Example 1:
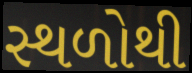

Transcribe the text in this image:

સ્થળોથી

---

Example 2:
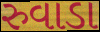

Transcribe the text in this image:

રુવાડા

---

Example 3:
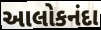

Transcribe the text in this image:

આલોકનંદા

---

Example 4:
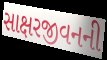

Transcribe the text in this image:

સાક્ષરજીવનની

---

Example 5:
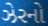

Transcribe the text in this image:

ઝેરનો